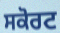
ਸਕੋਰਟ